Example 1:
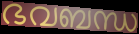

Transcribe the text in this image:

ഭവബന്ധ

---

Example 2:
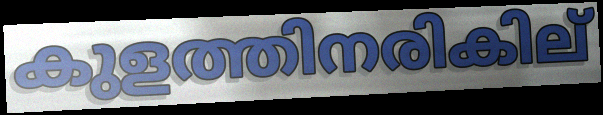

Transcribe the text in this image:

കുളത്തിനരികില്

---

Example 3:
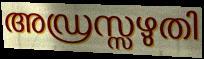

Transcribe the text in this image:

അഡ്രസ്സഴുതി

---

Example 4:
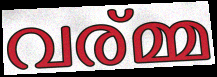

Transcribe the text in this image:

വര്മ്മ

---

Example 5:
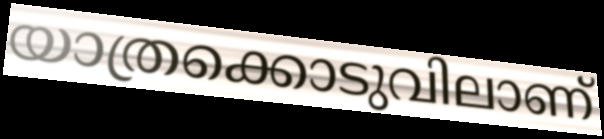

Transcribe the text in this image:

യാത്രക്കൊടുവിലാണ്